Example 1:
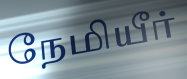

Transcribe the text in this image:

நேமியீர்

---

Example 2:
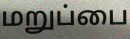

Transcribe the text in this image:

மறுப்பை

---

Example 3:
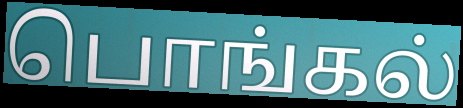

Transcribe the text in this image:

பொங்கல்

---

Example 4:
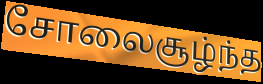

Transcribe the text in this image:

சோலைசூழ்ந்த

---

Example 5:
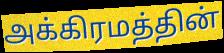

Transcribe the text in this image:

அக்கிரமத்தின்